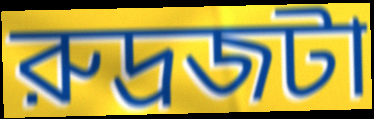
রুদ্রজটা